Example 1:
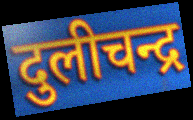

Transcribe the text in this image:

दुलीचन्द्र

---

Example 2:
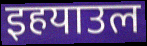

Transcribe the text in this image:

इहयाउल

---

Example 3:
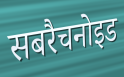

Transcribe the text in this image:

सबरैचनोइड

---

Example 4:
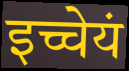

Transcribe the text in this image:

इच्चेयं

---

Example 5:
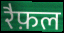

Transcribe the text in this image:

रैफ़ल